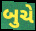
બુચે